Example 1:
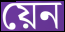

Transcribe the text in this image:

য়েন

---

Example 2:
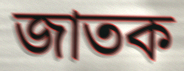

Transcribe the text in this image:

জাতক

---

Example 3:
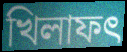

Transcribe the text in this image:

খিলাফৎ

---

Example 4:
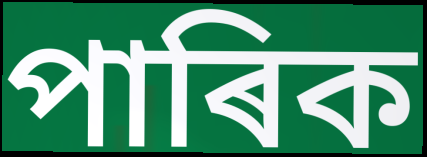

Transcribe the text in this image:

পাৰিক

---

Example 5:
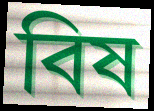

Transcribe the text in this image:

বিষ